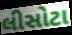
લીસોટા